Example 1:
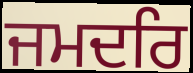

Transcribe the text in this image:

ਜਮਦਰਿ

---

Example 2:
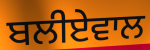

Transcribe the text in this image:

ਬਲੀਏਵਾਲ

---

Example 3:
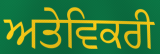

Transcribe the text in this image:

ਅਤੇਵਿਕਰੀ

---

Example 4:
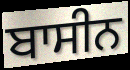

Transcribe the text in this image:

ਬਾਸੀਨ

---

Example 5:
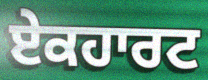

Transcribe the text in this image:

ਏਕਹਾਰਟ